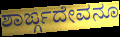
ಶಾರ್ಙ್ಗದೇವನೂ